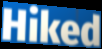
Hiked